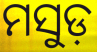
ମସୁଡ଼